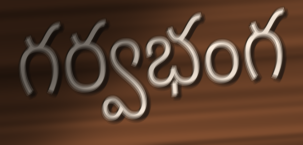
గర్వభంగ